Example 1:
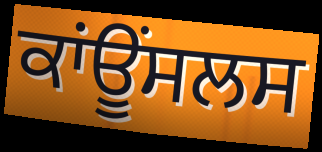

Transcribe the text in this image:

ਕਾਂਊਂਸਲਸ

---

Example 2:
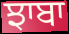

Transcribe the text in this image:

ਝਾਬਾ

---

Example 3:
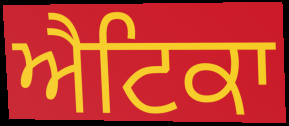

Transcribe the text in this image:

ਐਟਿਕਾ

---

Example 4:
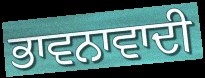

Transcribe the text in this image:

ਭਾਵਨਾਵਾਦੀ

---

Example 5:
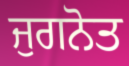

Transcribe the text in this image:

ਜੁਗਨੋਤ